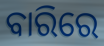
ବାରିରେ